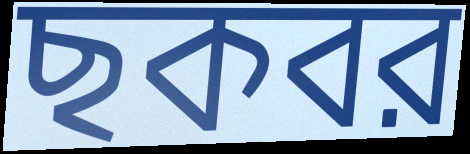
ছকবর